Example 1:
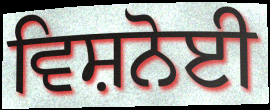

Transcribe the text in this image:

ਵਿਸ਼ਨੋਈ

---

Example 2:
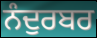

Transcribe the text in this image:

ਨੰਦੁਰਬਰ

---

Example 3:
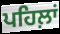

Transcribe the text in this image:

ਪਹਿਲ਼ਾਂ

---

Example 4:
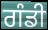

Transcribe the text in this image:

ਗੰਡੀ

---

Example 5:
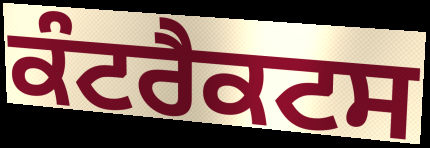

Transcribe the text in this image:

ਕੰਟਰੈਕਟਸ